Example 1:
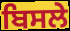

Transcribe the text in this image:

ਬਿਸਲੇ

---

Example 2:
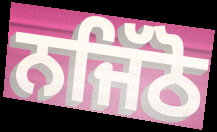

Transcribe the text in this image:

ਨਜਿੱਠੋ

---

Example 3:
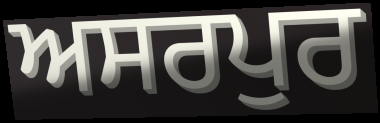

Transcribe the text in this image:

ਅਸਰਪੁਰ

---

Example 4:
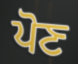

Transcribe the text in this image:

ਪੋਣ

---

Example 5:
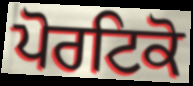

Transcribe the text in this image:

ਪੋਰਟਿਕੋ